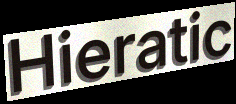
Hieratic